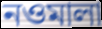
নওমালা